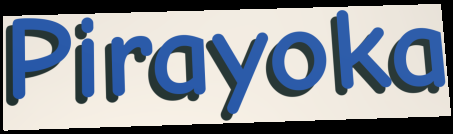
Pirayoka